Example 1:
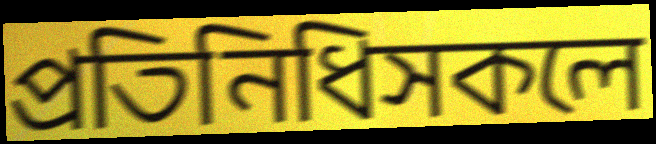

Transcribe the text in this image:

প্ৰতিনিধিসকলে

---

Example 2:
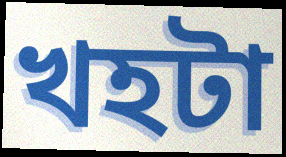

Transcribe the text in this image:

খহটা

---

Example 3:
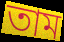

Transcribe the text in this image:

তাম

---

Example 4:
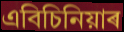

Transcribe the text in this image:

এবিচিনিয়াৰ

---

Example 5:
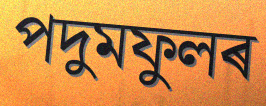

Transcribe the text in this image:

পদুমফুলৰ